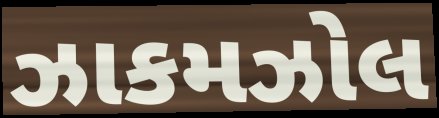
ઝાકમઝોલ